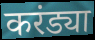
करंड्या